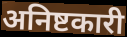
अनिष्टकारी